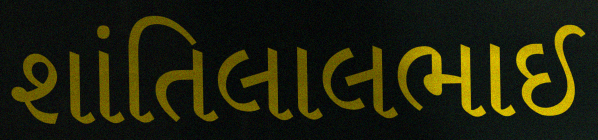
શાંતિલાલભાઈ